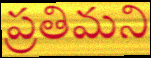
ప్రతిమని